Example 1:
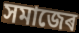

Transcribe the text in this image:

সমাজেৰ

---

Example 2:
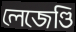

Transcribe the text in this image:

লেজেণ্ডি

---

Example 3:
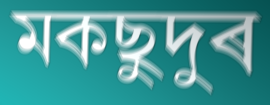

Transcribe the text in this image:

মকছুদুৰ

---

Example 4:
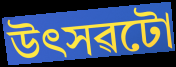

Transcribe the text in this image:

উৎসৱটো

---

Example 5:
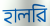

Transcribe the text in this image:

হালৱি